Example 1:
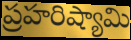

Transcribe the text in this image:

ప్రహరిష్యామి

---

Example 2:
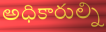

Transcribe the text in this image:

అధికారుల్ని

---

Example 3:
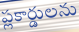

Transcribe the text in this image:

ప్లకార్డులను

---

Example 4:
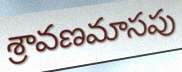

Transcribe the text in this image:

శ్రావణమాసపు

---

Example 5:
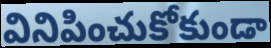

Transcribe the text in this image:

వినిపించుకోకుండా